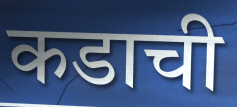
कडाची